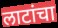
लाटांचा